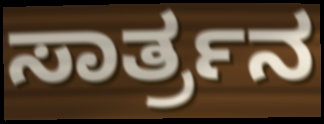
ಸಾರ್ತ್ರನ